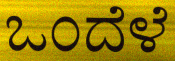
ಒಂದೆಳೆ